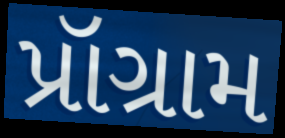
પ્રૉગ્રામ